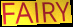
FAIRY